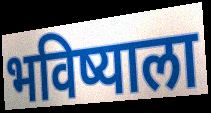
भविष्याला